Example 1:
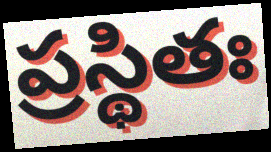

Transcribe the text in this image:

ప్రస్థితః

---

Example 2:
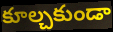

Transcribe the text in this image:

కూల్చకుండా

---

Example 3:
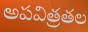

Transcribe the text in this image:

అపవిత్రతల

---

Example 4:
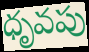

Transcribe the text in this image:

ధృవపు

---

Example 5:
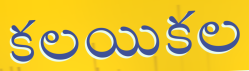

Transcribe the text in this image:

కలయికల